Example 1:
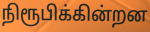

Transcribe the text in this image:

நிரூபிக்கின்றன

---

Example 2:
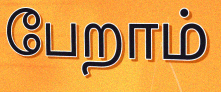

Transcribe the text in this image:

பேறாம்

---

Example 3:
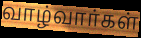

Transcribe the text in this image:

வாழ்வார்கள்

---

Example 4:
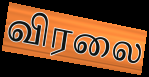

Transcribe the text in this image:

விரலை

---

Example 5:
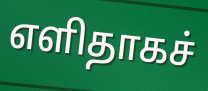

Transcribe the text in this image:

எளிதாகச்